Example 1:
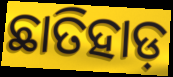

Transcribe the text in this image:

ଛାତିହାଡ଼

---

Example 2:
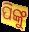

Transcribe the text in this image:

ପିଙ୍କୁ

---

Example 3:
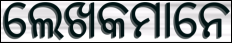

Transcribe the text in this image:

ଲେଖକମାନେ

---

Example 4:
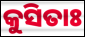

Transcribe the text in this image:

କୁସିତାଃ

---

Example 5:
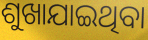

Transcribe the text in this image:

ଶୁଖାଯାଇଥିବା